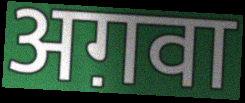
अग़वा